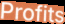
Profits